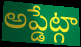
అప్డేట్గా